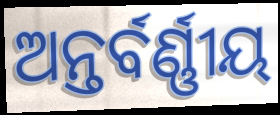
ଅନ୍ତର୍ବର୍ଣ୍ଣୀୟ